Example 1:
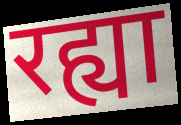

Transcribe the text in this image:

रह्या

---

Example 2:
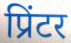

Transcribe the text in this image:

प्रिंटर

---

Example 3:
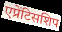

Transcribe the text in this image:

एप्रेंटिसशिप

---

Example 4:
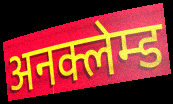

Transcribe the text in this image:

अनक्लेम्ड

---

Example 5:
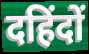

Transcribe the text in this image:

दहिंदों